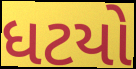
ધટયો